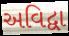
અવિદ્વા